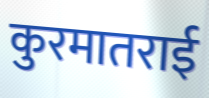
कुरमातराई